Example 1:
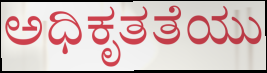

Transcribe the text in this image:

ಅಧಿಕೃತತೆಯು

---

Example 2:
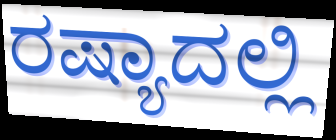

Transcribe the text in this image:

ರಷ್ಯಾದಲ್ಲಿ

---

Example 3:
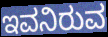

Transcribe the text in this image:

ಇವನಿರುವ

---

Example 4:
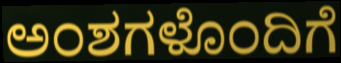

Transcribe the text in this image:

ಅಂಶಗಳೊಂದಿಗೆ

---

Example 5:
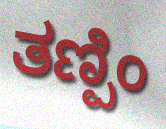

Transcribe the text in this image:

ತಣ್ಪಿಂ